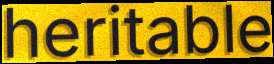
heritable